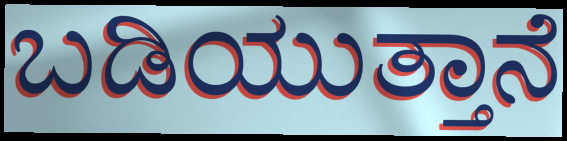
ಬಡಿಯುತ್ತಾನೆ